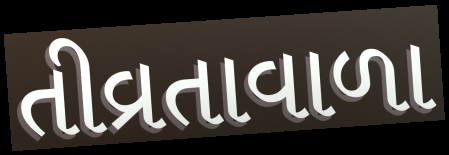
તીવ્રતાવાળા